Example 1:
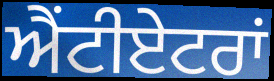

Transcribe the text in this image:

ਐਂਟੀਏਟਰਾਂ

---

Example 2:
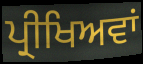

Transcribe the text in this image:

ਪ੍ਰੀਖਿਅਵਾਂ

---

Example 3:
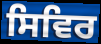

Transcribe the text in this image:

ਸਿਵਿਰ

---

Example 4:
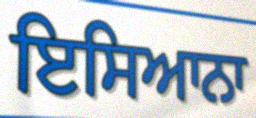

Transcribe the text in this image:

ਇਸਿਆਨਾ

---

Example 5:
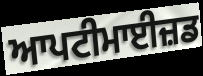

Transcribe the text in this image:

ਆਪਟੀਮਾਈਜ਼ਡ